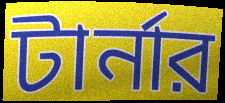
টার্নার